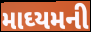
માઘ્યમની